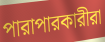
পারাপারকারীরা